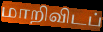
மாறிவிடப்